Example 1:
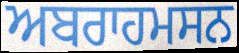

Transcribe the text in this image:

ਅਬਰਾਹਮਸਨ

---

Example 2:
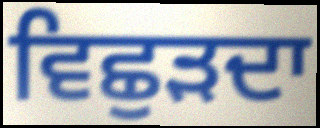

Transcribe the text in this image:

ਵਿਛੁੜਦਾ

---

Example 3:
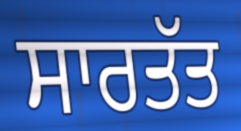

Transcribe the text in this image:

ਸਾਰਤੱਤ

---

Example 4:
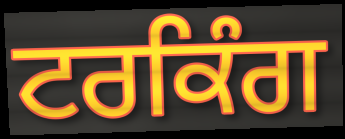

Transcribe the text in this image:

ਟਰਕਿੰਗ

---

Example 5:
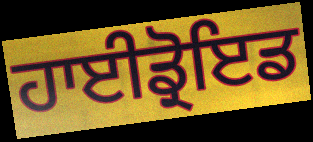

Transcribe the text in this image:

ਹਾਈਡ੍ਰੋਇਡ